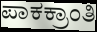
ಪಾಕಕ್ರಾಂತಿ